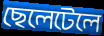
ছেলেটেলে